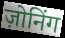
ज़ोनिंग